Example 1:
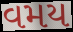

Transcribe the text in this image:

વમય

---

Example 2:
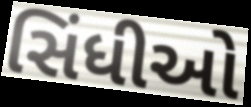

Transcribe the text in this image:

સિંધીઓ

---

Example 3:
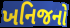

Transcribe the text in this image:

ખનિજનો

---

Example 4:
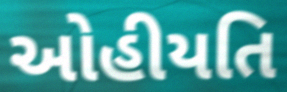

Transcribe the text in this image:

ઓહીયતિ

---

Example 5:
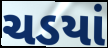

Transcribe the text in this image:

ચડયાં